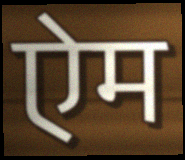
ऐम